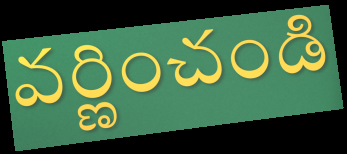
వర్ణించండి